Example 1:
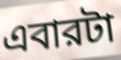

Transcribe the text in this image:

এবারটা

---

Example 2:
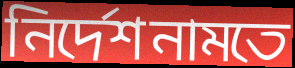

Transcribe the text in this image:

নির্দেশনামতে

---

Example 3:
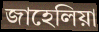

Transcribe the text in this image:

জাহেলিয়া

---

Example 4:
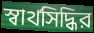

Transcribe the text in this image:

স্বার্থসিদ্ধির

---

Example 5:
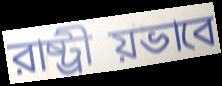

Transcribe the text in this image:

রাষ্ট্রীয়ভাবে